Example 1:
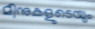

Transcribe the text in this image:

മീനുകളുടെയും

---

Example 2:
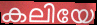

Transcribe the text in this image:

കലിയേ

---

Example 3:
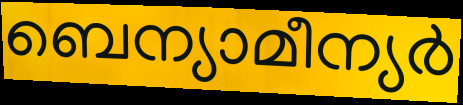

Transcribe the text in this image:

ബെന്യാമീന്യർ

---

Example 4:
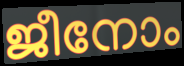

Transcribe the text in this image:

ജീനോം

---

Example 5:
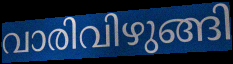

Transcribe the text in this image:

വാരിവിഴുങ്ങി